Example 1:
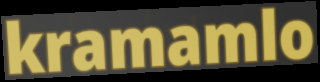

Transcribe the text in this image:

kramamlo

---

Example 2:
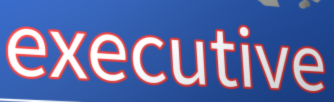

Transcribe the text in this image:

executive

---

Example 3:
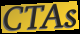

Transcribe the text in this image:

CTAs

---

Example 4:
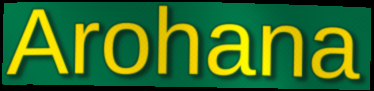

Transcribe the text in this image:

Arohana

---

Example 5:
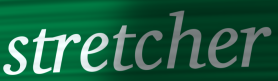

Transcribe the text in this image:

stretcher